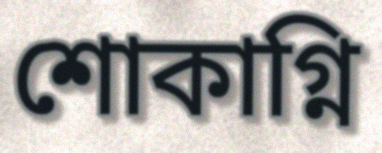
শোকাগ্নি